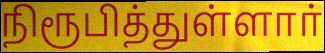
நிரூபித்துள்ளார்